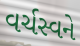
વર્ચસ્વને